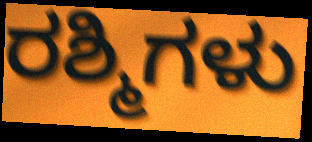
ರಶ್ಮಿಗಳು